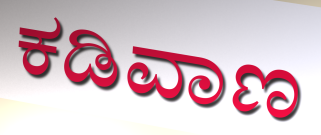
ಕಡಿವಾಣ